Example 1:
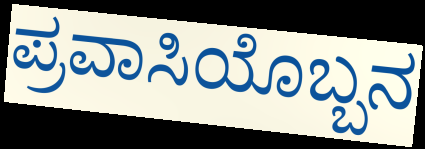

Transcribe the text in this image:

ಪ್ರವಾಸಿಯೊಬ್ಬನ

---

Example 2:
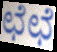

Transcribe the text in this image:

ಛೆಛೆ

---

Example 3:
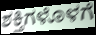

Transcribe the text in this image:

ಶಕ್ತಿಗಳೊಳಗೆ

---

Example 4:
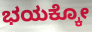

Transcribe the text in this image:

ಭಯಕ್ಕೋ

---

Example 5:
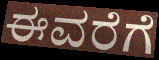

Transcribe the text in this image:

ಈವರೆಗೆ